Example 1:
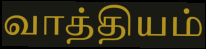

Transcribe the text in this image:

வாத்தியம்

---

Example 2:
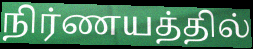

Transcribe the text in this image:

நிர்ணயத்தில்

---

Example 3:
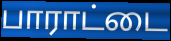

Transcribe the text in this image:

பாராட்டை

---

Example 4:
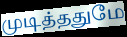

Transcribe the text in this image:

முடித்ததுமே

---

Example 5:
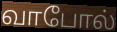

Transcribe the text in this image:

வாபோல்